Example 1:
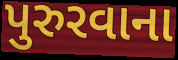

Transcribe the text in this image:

પુરુરવાના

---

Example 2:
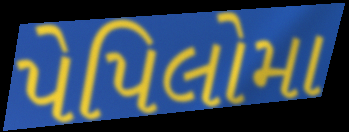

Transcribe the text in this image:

પેપિલોમા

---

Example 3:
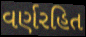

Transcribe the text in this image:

વર્ણરહિત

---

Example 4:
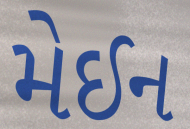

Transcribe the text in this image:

મેઈન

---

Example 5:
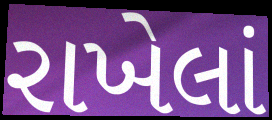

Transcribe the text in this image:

રાખેલાં